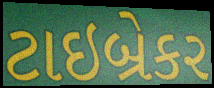
ટાઇબ્રેકર